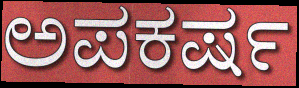
ಅಪಕರ್ಷ